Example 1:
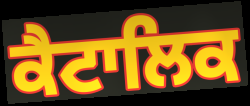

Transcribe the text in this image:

ਕੈਟਾਲਿਕ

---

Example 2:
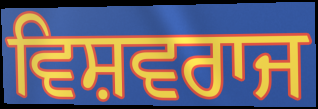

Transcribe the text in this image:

ਵਿਸ਼ਵਰਾਜ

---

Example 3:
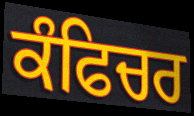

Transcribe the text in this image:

ਕੰਫਿਚਰ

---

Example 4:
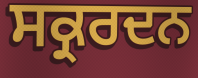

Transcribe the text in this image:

ਸਕ੍ਰਰਦਨ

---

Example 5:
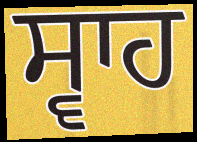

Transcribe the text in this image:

ਸ੍ਵਾਹ